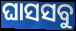
ଘାସସବୁ